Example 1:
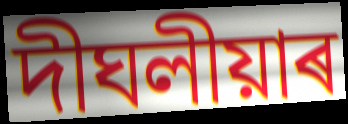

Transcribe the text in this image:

দীঘলীয়াৰ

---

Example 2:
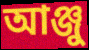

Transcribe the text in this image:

আঞ্জু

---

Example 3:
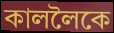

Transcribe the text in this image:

কাললৈকে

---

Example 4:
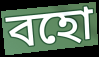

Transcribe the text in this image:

বহো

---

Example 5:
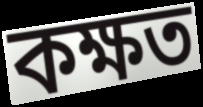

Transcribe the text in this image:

কক্ষত